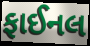
ફાઈનલ